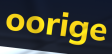
oorige